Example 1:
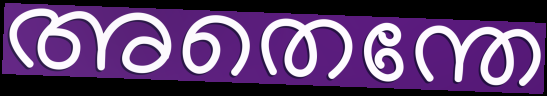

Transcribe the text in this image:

അതെന്തേ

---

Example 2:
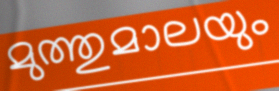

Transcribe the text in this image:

മുത്തുമാലയും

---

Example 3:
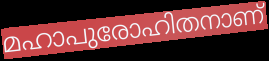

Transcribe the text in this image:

മഹാപുരോഹിതനാണ്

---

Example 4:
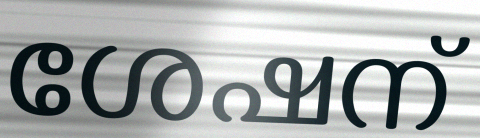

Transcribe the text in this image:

ശേഷന്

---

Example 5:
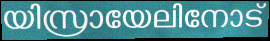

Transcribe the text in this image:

യിസ്രായേലിനോട്